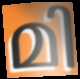
മി